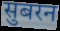
सुबरन